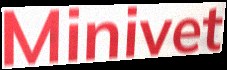
Minivet